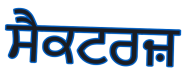
ਸੈਕਟਰਜ਼